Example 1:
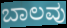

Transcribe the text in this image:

ಬಾಲವು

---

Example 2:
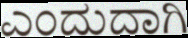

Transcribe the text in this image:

ಎಂದುದಾಗಿ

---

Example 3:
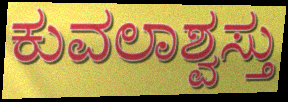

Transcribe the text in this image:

ಕುವಲಾಶ್ವಸ್ತು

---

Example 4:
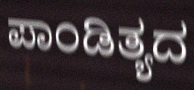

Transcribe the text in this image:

ಪಾಂಡಿತ್ಯದ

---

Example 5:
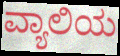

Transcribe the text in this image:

ವ್ಯಾಲಿಯ